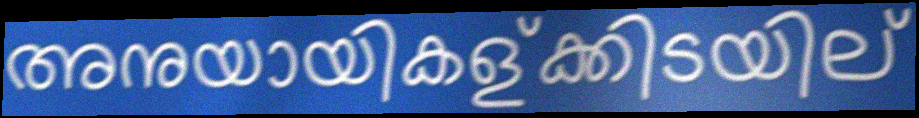
അനുയായികള്ക്കിടയില്